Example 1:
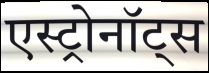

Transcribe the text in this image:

एस्ट्रोनॉट्स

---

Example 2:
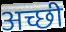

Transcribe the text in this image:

अच्छी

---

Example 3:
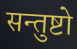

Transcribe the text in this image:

सन्तुष्टो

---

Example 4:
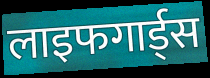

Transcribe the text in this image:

लाइफगार्ड्स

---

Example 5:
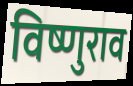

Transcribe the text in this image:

विष्णुराव